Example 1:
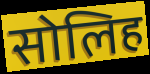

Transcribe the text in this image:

सोलिह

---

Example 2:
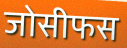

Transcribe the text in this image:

जोसीफस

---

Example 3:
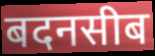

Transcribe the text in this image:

बदनसीब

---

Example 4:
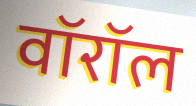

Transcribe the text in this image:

वॉरॉल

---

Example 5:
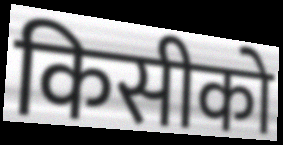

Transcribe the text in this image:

किसीको